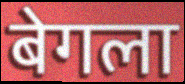
बेगला